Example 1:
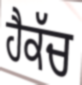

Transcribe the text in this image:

ਹੈਕੱਚ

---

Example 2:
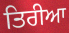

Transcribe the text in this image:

ਤਿਰੀਆ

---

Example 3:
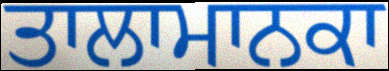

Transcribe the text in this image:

ਤਾਲਾਮਾਨਕਾ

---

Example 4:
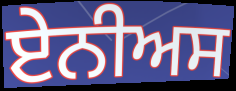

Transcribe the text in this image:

ਏਨੀਅਸ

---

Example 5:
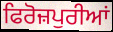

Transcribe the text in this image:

ਫਿਰੋਜ਼ਪੁਰੀਆਂ